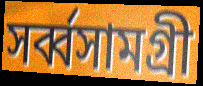
সর্ব্বসামগ্রী